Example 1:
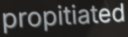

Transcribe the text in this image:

propitiated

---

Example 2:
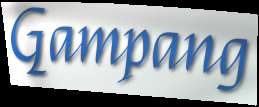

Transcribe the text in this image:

Gampang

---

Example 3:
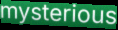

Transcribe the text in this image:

mysterious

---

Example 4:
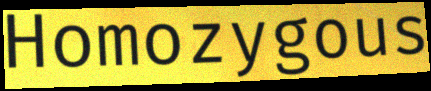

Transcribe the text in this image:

Homozygous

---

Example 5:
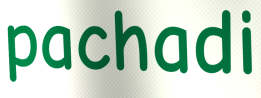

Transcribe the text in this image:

pachadi